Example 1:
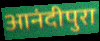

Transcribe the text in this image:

आनंदीपुरा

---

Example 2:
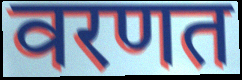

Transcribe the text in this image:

वरणत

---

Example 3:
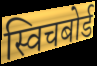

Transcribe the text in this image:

स्विचबोर्ड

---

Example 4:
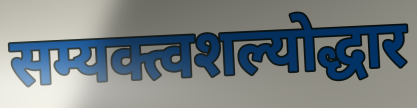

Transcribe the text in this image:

सम्यक्त्वशल्योद्धार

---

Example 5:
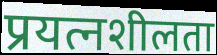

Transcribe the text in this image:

प्रयत्नशीलता